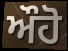
ਔਹੋ